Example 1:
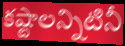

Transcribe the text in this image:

కష్టాలన్నిటినీ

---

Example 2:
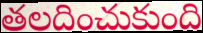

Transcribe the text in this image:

తలదించుకుంది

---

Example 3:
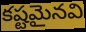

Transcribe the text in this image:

కష్టమైనవి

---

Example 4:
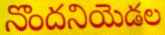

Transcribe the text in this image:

నొందనియెడల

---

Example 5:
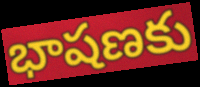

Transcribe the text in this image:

భాషణకు